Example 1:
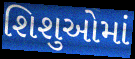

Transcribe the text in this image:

શિશુઓમાં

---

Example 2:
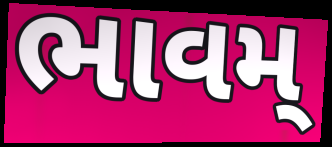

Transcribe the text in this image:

ભાવમ્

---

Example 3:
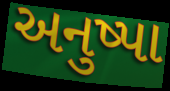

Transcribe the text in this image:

અનુષ્પા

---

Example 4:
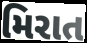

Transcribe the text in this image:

મિરાત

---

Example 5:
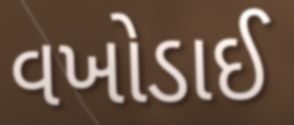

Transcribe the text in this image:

વખોડાઈ